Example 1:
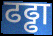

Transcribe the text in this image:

ढढ्ढा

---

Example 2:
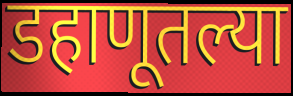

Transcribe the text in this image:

डहाणूतल्या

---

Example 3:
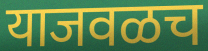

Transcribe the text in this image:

याजवळच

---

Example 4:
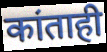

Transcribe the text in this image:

कांताही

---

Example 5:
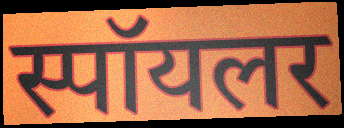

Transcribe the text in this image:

स्पॉयलर